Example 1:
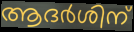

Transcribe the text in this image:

ആദർശിന്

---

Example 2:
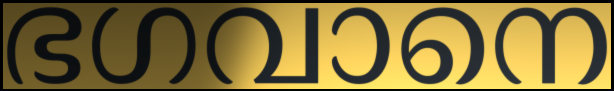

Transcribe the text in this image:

ഭഗവാനെ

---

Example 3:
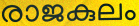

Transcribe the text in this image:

രാജകുലം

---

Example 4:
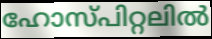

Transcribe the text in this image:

ഹോസ്പിറ്റലിൽ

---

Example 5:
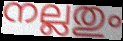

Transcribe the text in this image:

നല്ലതും